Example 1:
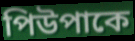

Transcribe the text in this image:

পিউপাকে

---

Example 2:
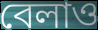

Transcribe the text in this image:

বেলাও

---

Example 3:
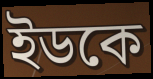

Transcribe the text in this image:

ইডকে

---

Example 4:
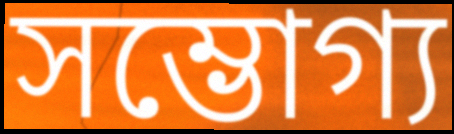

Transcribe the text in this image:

সম্ভোগ্য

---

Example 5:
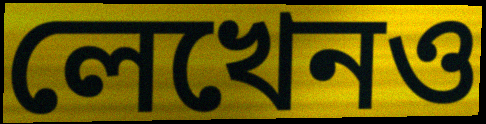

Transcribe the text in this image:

লেখেনও